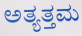
ಅತ್ಯತ್ತಮ